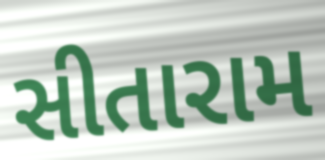
સીતારામ